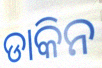
ଡାକିନ